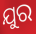
ଯୁର